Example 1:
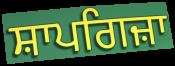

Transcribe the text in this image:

ਸ਼ਾਪਗਿਜ਼ਾ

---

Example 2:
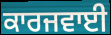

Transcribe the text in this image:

ਕਾਰਜਵਾਈ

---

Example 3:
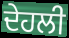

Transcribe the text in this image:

ਦੇਹਲੀ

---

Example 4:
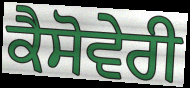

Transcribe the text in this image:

ਕੈਸੋਵੇਰੀ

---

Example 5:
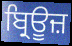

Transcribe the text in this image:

ਬ੍ਰਿਊਜ਼